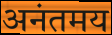
अनंतमय